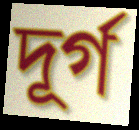
দূর্গ